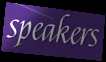
speakers